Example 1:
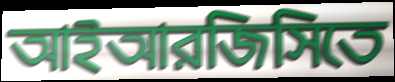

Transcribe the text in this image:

আইআরজিসিতে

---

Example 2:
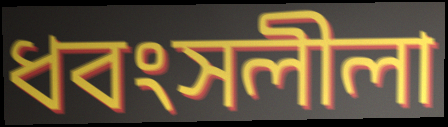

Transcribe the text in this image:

ধবংসলীলা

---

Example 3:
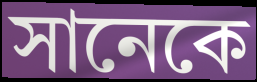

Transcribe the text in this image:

সানেকে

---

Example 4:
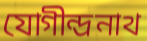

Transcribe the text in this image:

যোগীন্দ্রনাথ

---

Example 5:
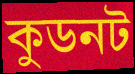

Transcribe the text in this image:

কুডনট